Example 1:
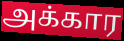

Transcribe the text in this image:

அக்கார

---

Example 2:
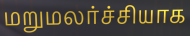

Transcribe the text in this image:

மறுமலர்ச்சியாக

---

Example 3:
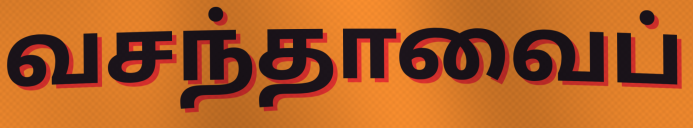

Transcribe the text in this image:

வசந்தாவைப்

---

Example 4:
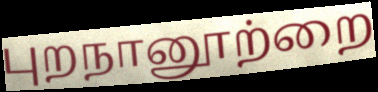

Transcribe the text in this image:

புறநானூற்றை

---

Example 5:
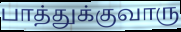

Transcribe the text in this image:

பாத்துக்குவாரு